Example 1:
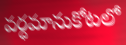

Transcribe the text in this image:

వర్ధమానుకోటలో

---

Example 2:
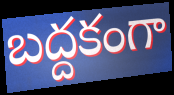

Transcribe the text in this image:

బద్దకంగా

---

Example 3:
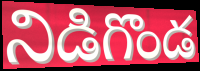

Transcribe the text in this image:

నిడిగొండ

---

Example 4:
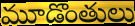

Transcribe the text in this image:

మూడొంతులు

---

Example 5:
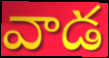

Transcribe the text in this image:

వాడ